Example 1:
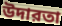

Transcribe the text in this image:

উদারতা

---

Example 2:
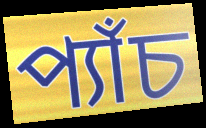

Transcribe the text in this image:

প্যাঁচ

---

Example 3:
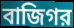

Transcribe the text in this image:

বাজিগর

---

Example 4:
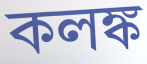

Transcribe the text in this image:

কলঙ্ক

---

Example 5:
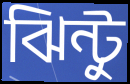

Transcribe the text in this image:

ঝিন্টু